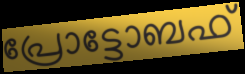
പ്രോട്ടോബഫ്